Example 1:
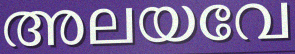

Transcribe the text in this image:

അലയവേ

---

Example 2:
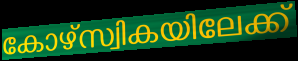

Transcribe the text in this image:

കോഴ്സ്വികയിലേക്ക്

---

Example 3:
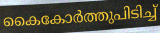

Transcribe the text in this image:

കൈകോർത്തുപിടിച്ച്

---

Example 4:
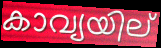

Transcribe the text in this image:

കാവ്യയില്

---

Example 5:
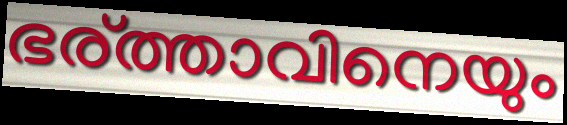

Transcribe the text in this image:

ഭര്ത്താവിനെയും